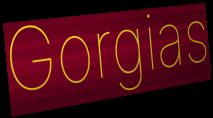
Gorgias